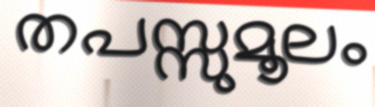
തപസ്സുമൂലം